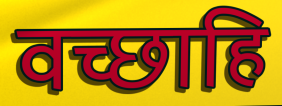
वच्छाहि